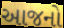
આજનો